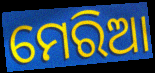
ମେରିଆ